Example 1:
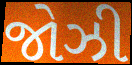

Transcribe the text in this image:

જોઝી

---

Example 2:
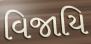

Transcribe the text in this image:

વિજાયિ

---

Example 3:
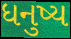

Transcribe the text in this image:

ધનુષ્ય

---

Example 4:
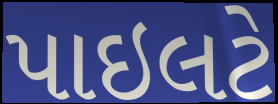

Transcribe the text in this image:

પાઇલટે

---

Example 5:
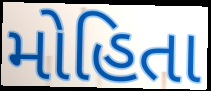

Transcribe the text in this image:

મોહિતા